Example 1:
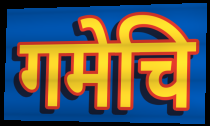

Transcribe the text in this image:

गमेचि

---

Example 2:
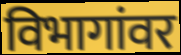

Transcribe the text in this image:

विभागांवर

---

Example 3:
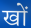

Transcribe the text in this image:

खों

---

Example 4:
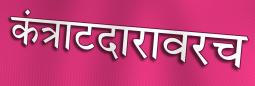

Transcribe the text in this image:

कंत्राटदारावरच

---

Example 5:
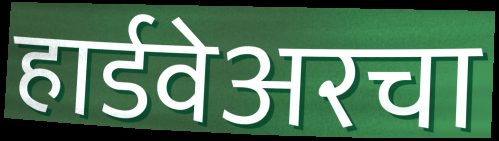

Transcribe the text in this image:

हार्डवेअरचा